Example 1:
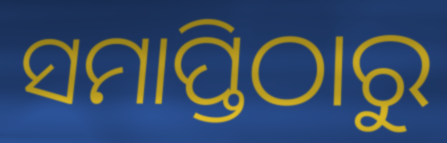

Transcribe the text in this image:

ସମାପ୍ତିଠାରୁ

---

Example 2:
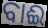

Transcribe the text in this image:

ବାଈ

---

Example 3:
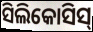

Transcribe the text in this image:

ସିଲିକୋସିସ୍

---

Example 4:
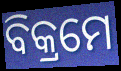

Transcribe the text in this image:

ବିକ୍ରମେ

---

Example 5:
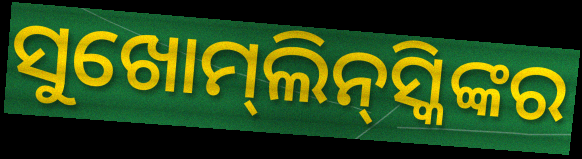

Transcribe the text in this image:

ସୁଖୋମ୍‍ଲିନ୍‍ସ୍କିଙ୍କର